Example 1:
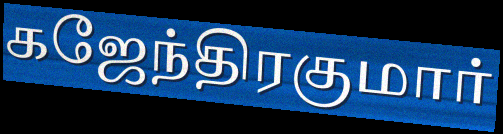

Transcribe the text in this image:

கஜேந்திரகுமார்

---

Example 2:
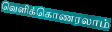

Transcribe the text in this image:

வெளிக்கொணரலாம்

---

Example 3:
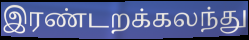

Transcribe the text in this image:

இரண்டறக்கலந்து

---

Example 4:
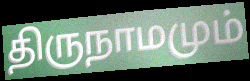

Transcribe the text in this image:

திருநாமமும்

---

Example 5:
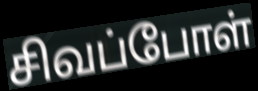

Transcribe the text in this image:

சிவப்போள்